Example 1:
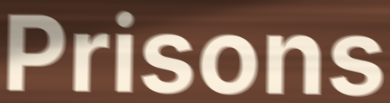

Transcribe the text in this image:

Prisons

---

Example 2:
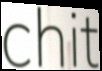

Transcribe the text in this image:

chit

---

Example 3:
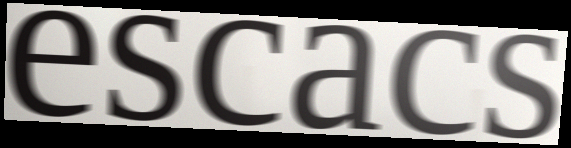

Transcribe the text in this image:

escacs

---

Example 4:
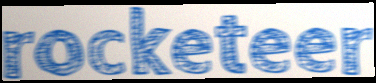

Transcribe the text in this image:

rocketeer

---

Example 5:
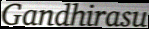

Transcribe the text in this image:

Gandhirasu